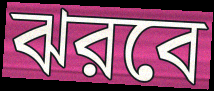
ঝরবে